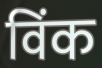
विंक